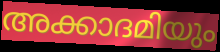
അക്കാദമിയും